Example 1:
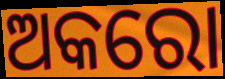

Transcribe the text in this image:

ଅକରୋ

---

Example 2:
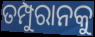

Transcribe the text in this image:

ତମ୍ପୁରାନକୁ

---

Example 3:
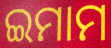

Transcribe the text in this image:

ଇମାମ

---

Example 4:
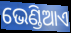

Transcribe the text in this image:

ଭେଣ୍ଡିଆଏ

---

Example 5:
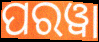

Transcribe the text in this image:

ପରୱା